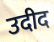
उदीद